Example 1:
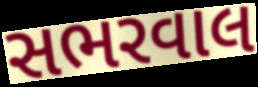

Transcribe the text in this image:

સભરવાલ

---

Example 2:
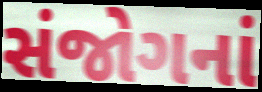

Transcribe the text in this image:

સંજોગનાં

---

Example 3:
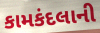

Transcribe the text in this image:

કામકંદલાની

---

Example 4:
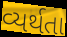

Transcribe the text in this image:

વ્યર્થતા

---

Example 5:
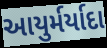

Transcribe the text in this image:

આયુર્મર્યાદા